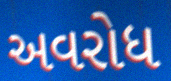
અવરોધ